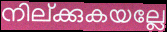
നില്ക്കുകയല്ലേ